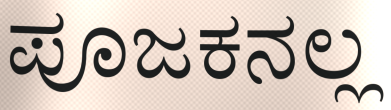
ಪೂಜಕನಲ್ಲ